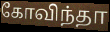
கோவிந்தா